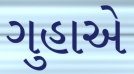
ગુહાએ